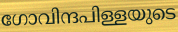
ഗോവിന്ദപിള്ളയുടെ